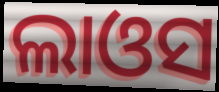
ଲାଓସ